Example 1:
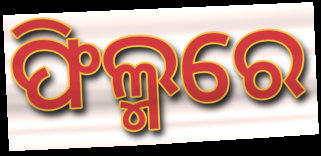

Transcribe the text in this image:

ଫିଲ୍ମରେ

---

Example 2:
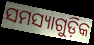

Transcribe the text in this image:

ସମସ୍ୟାଗୁଡ଼ିକ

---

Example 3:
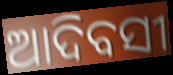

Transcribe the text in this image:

ଆଦିବସୀ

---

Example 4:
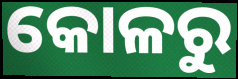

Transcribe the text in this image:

କୋଳରୁ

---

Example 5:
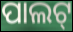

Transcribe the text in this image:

ପାଲଟ୍